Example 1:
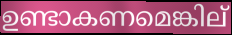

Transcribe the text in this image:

ഉണ്ടാകണമെങ്കില്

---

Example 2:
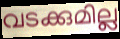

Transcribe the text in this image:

വടക്കുമില്ല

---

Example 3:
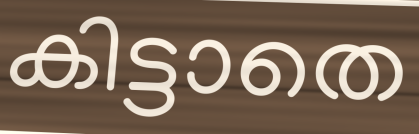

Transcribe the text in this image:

കിട്ടാതെ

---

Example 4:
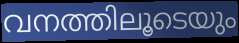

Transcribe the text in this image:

വനത്തിലൂടെയും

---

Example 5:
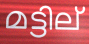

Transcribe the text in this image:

മട്ടില്